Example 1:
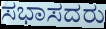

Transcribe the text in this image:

ಸಭಾಸದರು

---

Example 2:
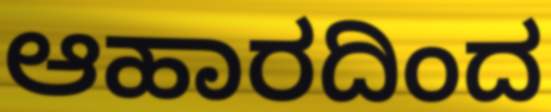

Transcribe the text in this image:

ಆಹಾರದಿಂದ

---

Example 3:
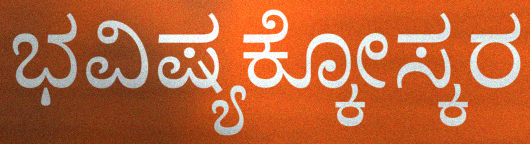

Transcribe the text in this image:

ಭವಿಷ್ಯಕ್ಕೋಸ್ಕರ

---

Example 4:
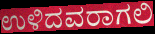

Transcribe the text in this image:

ಉಳಿದವರಾಗಲಿ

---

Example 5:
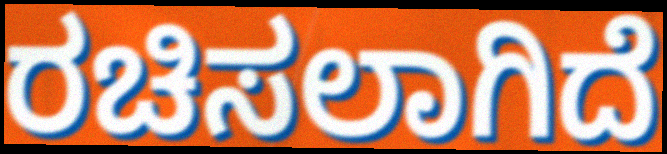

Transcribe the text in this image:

ರಚಿಸಲಾಗಿದೆ